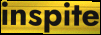
inspite